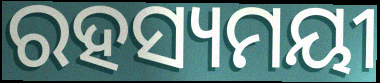
ରହସ୍ୟମୟୀ